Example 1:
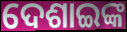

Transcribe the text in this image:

ଦେଶାଇଙ୍କ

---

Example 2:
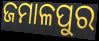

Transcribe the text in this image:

ଜମାଳପୁର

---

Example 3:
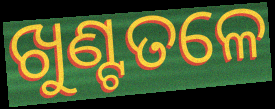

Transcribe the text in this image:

ଖୁଣ୍ଟତଳେ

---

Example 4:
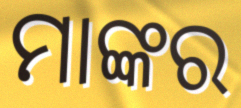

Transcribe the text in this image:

ମାଙ୍କର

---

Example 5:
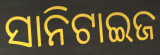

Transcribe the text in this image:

ସାନିଟାଇଜ